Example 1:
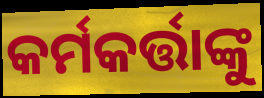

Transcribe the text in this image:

କର୍ମକର୍ତ୍ତାଙ୍କୁ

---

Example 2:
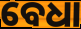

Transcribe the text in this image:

ବେଧା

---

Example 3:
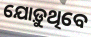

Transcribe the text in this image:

ଯୋଡ଼ୁଥିବେ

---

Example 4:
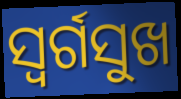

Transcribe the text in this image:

ସ୍ୱର୍ଗସୁଖ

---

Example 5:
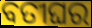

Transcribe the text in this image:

ବତୀଘର